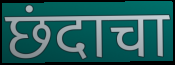
छंदाचा